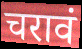
चरावं